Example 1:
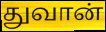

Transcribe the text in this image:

துவான்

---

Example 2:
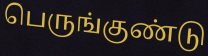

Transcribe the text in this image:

பெருங்குண்டு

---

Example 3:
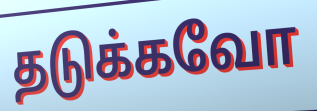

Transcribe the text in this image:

தடுக்கவோ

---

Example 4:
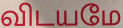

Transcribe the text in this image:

விடயமே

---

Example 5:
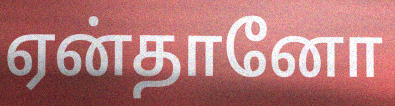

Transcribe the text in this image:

ஏன்தானோ